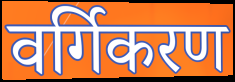
वर्गिकरण